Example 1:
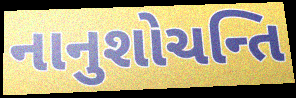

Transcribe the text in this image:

નાનુશોચન્તિ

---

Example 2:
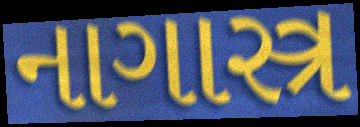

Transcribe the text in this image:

નાગાસ્ત્ર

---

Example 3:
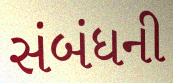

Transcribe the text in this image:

સંબંધની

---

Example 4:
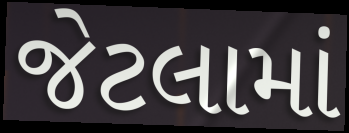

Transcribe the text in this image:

જેટલામાં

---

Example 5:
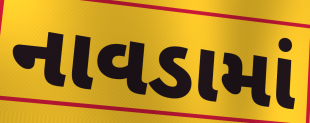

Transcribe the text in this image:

નાવડામાં